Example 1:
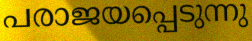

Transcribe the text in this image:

പരാജയപ്പെടുന്നു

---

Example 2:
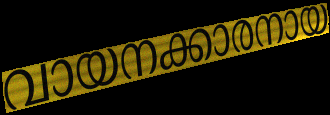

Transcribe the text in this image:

വായനക്കാരനായ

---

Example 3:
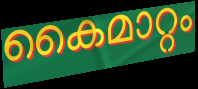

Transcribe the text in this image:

കൈമാറ്റം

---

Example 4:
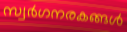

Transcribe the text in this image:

സ്വർഗനരകങ്ങൾ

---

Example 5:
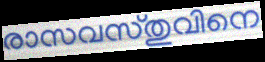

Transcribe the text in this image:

രാസവസ്തുവിനെ